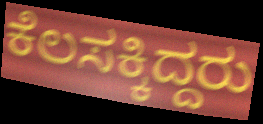
ಕೆಲಸಕ್ಕಿದ್ದರು